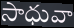
సాధువా